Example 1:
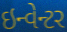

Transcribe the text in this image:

ઇન્વેન્ટર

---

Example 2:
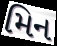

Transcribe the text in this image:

મિન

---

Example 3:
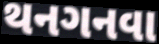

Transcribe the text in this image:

થનગનવા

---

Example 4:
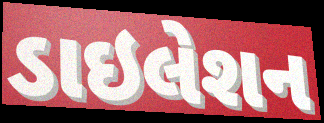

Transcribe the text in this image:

ડાઇલેશન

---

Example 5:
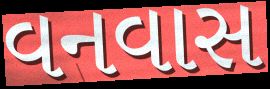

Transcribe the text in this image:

વનવાસ